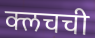
क्लचची